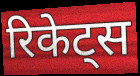
रिकेट्स